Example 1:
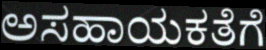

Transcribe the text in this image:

ಅಸಹಾಯಕತೆಗೆ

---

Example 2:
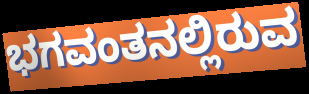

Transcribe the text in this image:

ಭಗವಂತನಲ್ಲಿರುವ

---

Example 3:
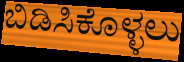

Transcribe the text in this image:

ಬಿಡಿಸಿಕೊಳ್ಳಲು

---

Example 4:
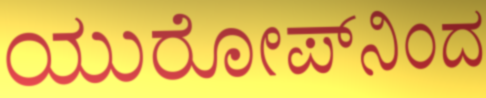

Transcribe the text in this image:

ಯುರೋಪ್‌ನಿಂದ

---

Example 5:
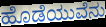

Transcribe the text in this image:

ಹೊಡೆಯುವೆನು